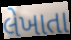
લેખાતા